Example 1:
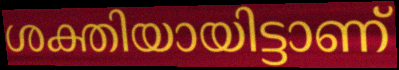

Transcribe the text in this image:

ശക്തിയായിട്ടാണ്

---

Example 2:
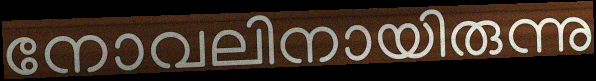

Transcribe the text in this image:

നോവലിനായിരുന്നു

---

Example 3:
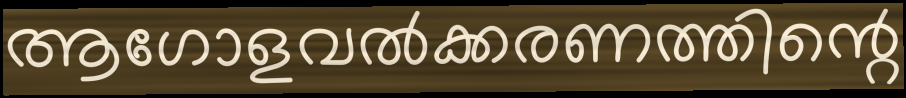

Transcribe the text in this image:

ആഗോളവൽക്കരണത്തിന്റെ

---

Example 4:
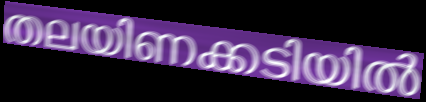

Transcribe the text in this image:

തലയിണക്കടിയിൽ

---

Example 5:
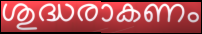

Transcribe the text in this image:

ശുദ്ധരാകണം